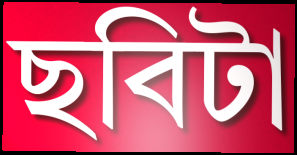
ছবিটা